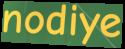
nodiye